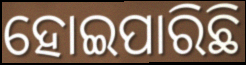
ହୋଇପାରିଛି